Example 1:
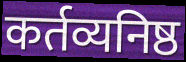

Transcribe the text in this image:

कर्तव्यनिष्ठ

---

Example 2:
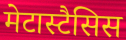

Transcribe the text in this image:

मेटास्टैसिस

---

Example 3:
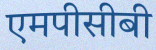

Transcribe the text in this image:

एमपीसीबी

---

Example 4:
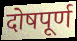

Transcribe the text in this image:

दोषपूर्ण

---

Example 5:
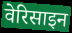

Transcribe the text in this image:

वेरिसाइन